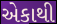
એકાથી